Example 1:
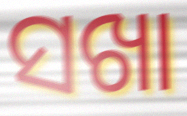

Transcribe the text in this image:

ସଖା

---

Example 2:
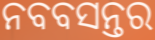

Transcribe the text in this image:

ନବବସନ୍ତର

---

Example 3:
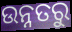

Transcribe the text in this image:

ଉନ୍ନତରୁ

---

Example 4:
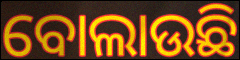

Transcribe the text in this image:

ବୋଲାଉଛି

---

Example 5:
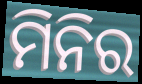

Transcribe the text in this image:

ମିନିର